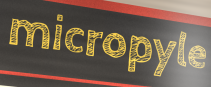
micropyle